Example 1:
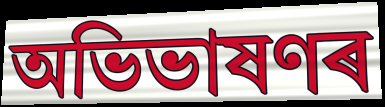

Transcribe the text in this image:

অভিভাষণৰ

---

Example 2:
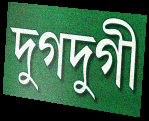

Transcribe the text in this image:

দুগদুগী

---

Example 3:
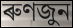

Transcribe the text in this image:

ৰুণজুন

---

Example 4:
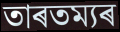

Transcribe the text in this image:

তাৰতম্যৰ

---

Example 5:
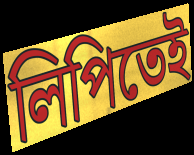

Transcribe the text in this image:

লিপিতেই